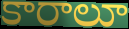
కారాలూ